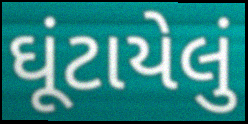
ઘૂંટાયેલું